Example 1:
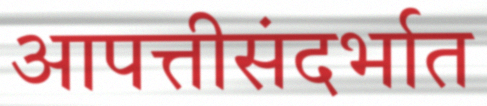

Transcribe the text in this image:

आपत्तीसंदर्भात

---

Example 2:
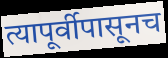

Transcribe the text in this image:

त्यापूर्वीपासूनच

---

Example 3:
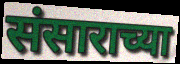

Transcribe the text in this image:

संसाराच्या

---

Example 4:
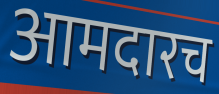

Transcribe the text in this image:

आमदारच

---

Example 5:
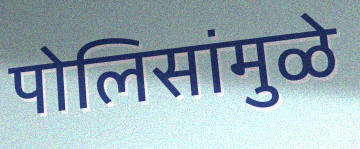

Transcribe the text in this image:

पोलिसांमुळे